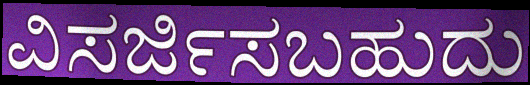
ವಿಸರ್ಜಿಸಬಹುದು